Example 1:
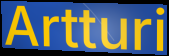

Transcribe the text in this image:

Artturi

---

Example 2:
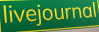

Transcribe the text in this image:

livejournal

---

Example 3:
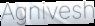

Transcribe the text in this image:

Agnivesh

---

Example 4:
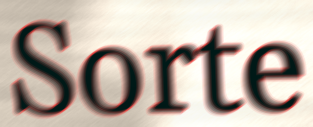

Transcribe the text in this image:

Sorte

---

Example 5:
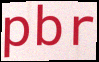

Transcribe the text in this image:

pbr